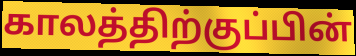
காலத்திற்குப்பின்